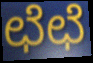
ಛೆಛೆ